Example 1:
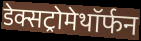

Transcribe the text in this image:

डेक्सट्रोमेथॉर्फन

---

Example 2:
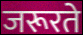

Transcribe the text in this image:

जरूरते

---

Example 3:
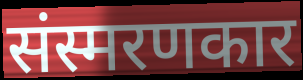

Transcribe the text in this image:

संस्मरणकार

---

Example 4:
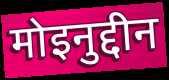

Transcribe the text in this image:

मोइनुद्दीन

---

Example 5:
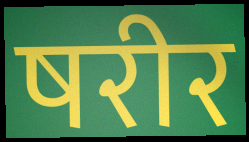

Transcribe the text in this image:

षरीर